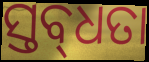
ସ୍ତବ୍‌ଧତା